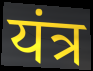
यंत्र